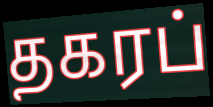
தகரப்